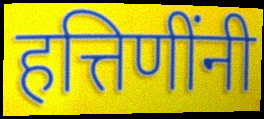
हत्तिणींनी